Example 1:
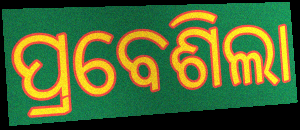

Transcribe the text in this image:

ପ୍ରବେଶିଲା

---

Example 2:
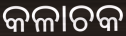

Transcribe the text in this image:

କଳାଚକ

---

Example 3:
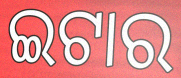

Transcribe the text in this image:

ଇଟାର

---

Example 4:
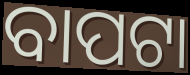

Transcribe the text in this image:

ବାପଟା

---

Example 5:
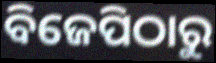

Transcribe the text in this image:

ବିଜେପିଠାରୁ